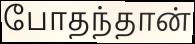
போதந்தான்